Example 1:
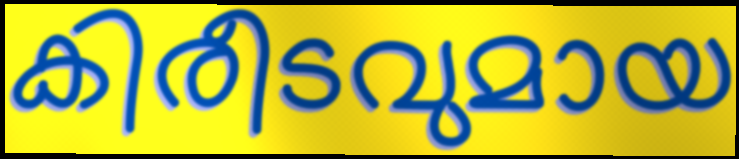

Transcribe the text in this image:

കിരീടവുമായ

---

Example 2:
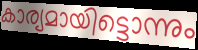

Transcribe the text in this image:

കാര്യമായിട്ടൊന്നും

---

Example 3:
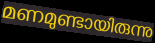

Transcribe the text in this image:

മണമുണ്ടായിരുന്നു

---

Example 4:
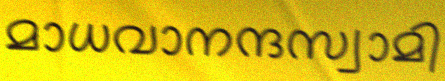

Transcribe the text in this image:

മാധവാനന്ദസ്വാമി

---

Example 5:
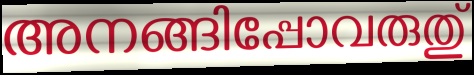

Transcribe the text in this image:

അനങ്ങിപ്പോവരുതു്